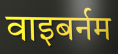
वाइबर्नम